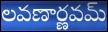
లవణార్ణవమ్